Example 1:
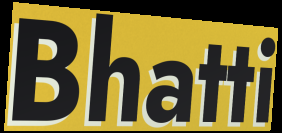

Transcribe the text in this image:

Bhatti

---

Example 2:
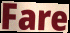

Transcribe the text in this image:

Fare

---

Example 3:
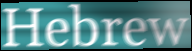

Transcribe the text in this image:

Hebrew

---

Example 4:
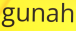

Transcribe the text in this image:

gunah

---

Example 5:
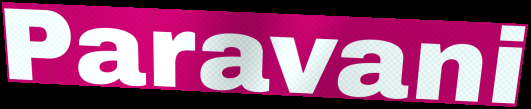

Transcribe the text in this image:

Paravani